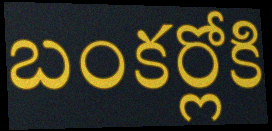
బంకర్లోకి